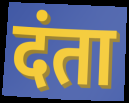
दंता